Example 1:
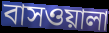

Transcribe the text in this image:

বাসওয়ালা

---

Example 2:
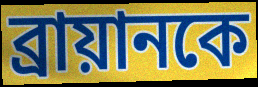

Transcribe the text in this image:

ব্রায়ানকে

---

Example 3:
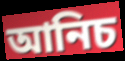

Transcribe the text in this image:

আনিচ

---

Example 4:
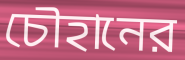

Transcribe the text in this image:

চৌহানের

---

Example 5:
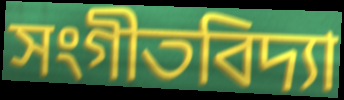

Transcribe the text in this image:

সংগীতবিদ্যা